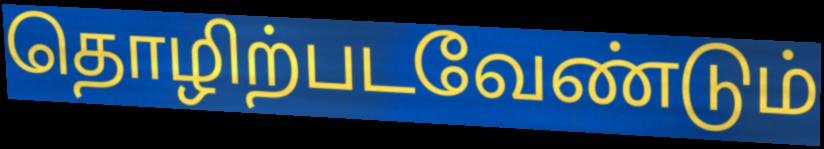
தொழிற்படவேண்டும்